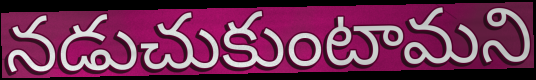
నడుచుకుంటామని